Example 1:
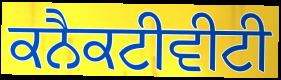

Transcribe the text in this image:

ਕਨੈਕਟੀਵੀਟੀ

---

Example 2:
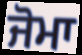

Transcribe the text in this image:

ਜੋਮਾ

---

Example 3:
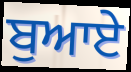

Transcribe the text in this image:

ਬੁਆਏ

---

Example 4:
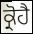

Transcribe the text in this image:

ਕ੍ਰੋਹੈ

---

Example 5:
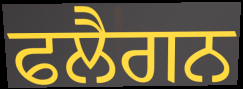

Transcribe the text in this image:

ਫਲੈਗਨ